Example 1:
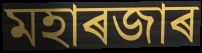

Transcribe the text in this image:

মহাৰজাৰ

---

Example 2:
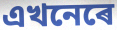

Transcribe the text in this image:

এখনেৰে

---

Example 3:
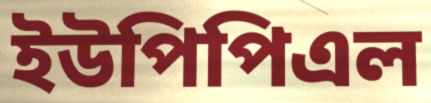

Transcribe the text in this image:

ইউপিপিএল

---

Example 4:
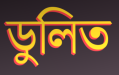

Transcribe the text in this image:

ডুলিত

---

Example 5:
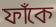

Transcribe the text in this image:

ফাঁকে